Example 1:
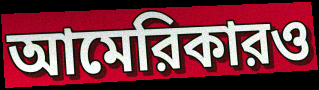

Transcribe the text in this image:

আমেরিকারও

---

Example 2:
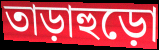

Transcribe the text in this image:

তাড়াহুড়ো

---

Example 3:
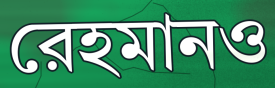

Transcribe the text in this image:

রেহমানও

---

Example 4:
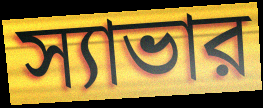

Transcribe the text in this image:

স্যাভার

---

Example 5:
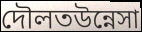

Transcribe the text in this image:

দৌলতউন্নেসা